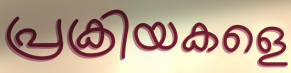
പ്രക്രിയകളെ